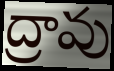
ద్రావు